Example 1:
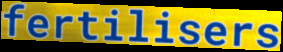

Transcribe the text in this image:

fertilisers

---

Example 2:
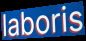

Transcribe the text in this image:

laboris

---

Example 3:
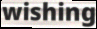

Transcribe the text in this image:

wishing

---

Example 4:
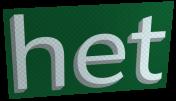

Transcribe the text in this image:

het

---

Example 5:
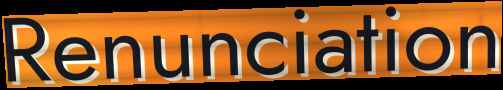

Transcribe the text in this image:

Renunciation